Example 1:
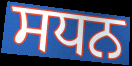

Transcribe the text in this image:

ਸਧਨ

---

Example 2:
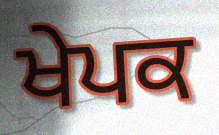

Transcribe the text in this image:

ਖੇਪਕ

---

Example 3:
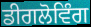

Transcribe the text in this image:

ਡੀਗਲੋਵਿੰਗ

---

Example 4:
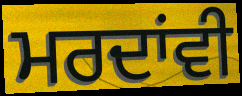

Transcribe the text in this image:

ਮਰਦਾਂਵੀ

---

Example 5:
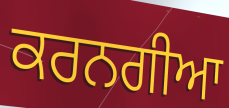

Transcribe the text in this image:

ਕਰਨਗੀਆ